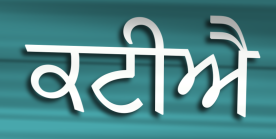
ਕਟੀਐ